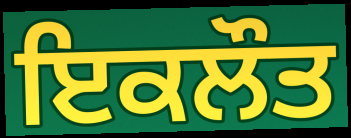
ਇਕਲੌਤ